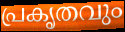
പ്രകൃതവും